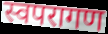
स्वपरागण